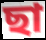
ছা